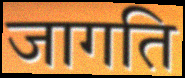
जागति